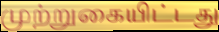
முற்றுகையிட்டது